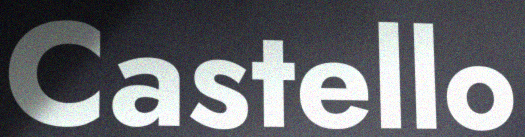
Castello